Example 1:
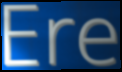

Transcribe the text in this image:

Ere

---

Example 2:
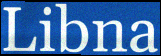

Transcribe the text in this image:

Libna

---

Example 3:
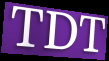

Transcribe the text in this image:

TDT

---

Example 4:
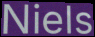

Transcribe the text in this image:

Niels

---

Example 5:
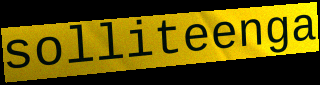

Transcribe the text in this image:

solliteenga